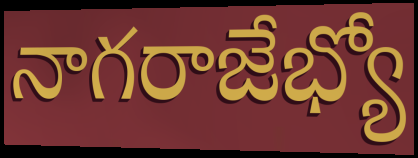
నాగరాజేభ్యో